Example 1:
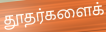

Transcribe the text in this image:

தூதர்களைக்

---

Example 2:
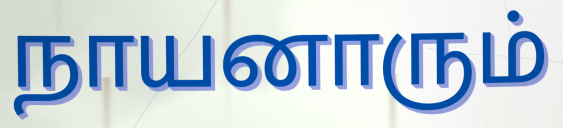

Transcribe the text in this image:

நாயனாரும்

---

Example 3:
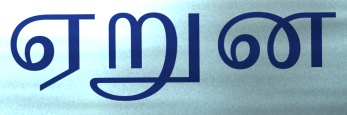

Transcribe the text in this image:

ஏறுன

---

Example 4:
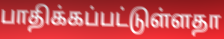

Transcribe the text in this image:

பாதிக்கப்பட்டுள்ளதா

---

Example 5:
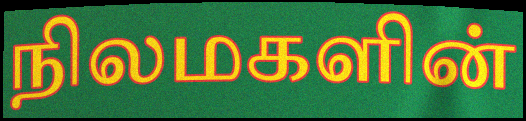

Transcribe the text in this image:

நிலமகளின்